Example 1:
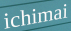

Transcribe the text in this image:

ichimai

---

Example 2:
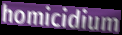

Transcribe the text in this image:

homicidium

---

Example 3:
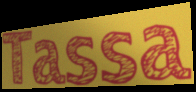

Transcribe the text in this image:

Tassa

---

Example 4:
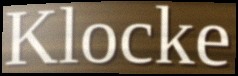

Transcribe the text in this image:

Klocke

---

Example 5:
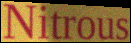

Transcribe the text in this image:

Nitrous